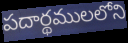
పదార్థములలోని